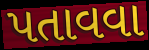
પતાવવા